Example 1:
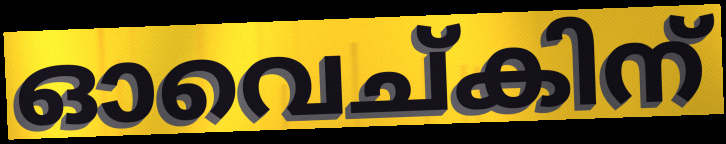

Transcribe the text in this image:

ഓവെച്കിന്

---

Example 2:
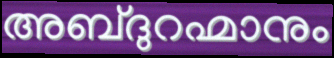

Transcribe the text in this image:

അബ്ദുറഹ്മാനും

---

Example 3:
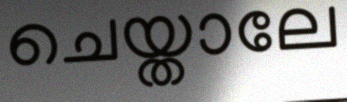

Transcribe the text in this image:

ചെയ്താലേ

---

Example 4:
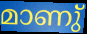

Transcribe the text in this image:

മാണു്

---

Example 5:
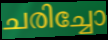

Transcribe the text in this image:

ചരിച്ചോ